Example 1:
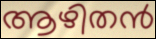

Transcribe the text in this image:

ആഴിതൻ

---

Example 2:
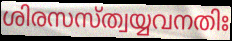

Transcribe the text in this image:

ശിരസസ്ത്വയ്യവനതിഃ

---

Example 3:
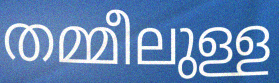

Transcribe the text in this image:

തമ്മീലുള്ള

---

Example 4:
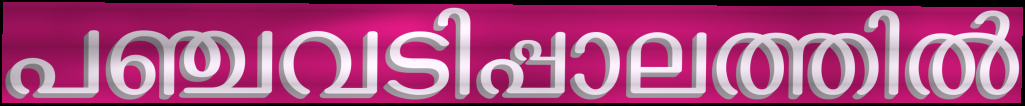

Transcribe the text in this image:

പഞ്ചവടിപ്പാലത്തിൽ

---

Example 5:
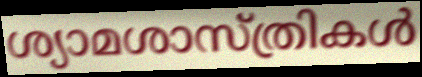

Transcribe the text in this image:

ശ്യാമശാസ്ത്രികൾ